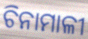
ଚିନାମାଳୀ